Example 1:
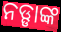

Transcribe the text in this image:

ନଡ୍ଡାଙ୍କ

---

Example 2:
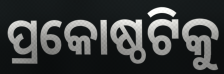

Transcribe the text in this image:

ପ୍ରକୋଷ୍ଠଟିକୁ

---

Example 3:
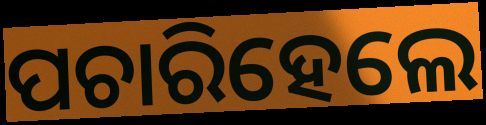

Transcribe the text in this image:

ପଚାରିହେଲେ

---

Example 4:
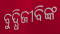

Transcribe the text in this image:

ବୁଦ୍ଧିଜୀବିଙ୍କ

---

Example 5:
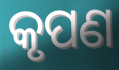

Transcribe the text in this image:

କୃପଣ